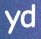
yd